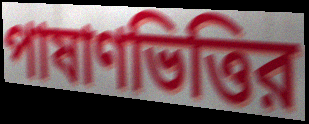
পাষাণভিত্তির